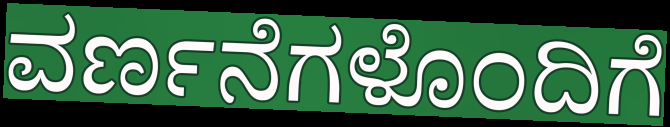
ವರ್ಣನೆಗಳೊಂದಿಗೆ